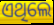
ଏଥିଲେ